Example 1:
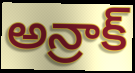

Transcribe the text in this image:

అన్రాక్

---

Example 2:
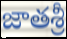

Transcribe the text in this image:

జాతశ్రీ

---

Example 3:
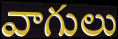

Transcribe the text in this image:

వాగులు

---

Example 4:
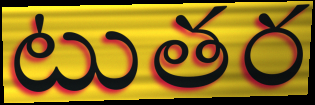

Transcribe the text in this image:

టుతర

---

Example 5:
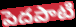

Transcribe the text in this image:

పెదపాటి